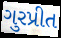
ગુરપ્રીત